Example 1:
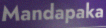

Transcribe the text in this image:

Mandapaka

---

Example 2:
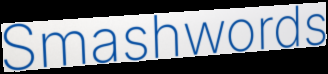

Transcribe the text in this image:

Smashwords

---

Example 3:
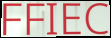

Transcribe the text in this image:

FFIEC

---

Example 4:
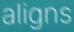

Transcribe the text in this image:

aligns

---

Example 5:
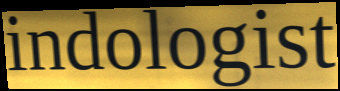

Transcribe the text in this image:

indologist